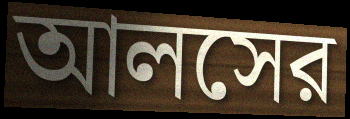
আলসের